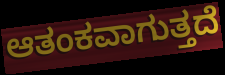
ಆತಂಕವಾಗುತ್ತದೆ